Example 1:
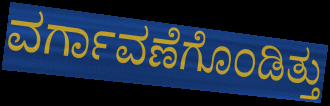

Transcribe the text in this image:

ವರ್ಗಾವಣೆಗೊಂಡಿತ್ತು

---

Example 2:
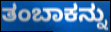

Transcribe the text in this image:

ತಂಬಾಕನ್ನು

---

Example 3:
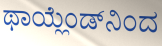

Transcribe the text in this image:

ಥಾಯ್ಲೆಂಡ್‌ನಿಂದ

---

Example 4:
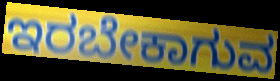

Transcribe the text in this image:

ಇರಬೇಕಾಗುವ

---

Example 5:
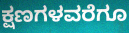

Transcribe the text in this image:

ಕ್ಷಣಗಳವರೆಗೂ